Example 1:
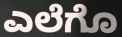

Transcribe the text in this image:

ಎಲೆಗೊ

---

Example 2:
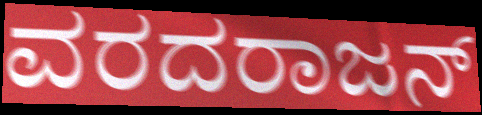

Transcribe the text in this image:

ವರದರಾಜನ್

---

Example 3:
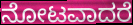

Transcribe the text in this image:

ನೋಟವಾದರೆ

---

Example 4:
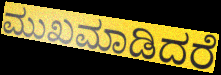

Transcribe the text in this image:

ಮುಖಮಾಡಿದರೆ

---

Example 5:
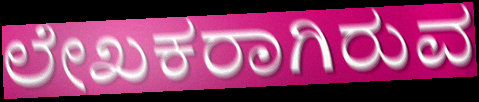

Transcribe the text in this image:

ಲೇಖಕರಾಗಿರುವ